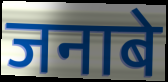
जनाबे